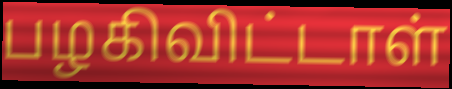
பழகிவிட்டாள்